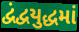
દ્વંદ્વયુદ્ધમાં